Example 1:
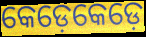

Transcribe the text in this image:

କେଡ଼େକେଡ଼େ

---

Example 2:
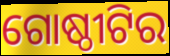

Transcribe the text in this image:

ଗୋଷ୍ଠୀଟିର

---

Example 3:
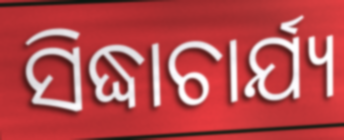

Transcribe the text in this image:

ସିଦ୍ଧାଚାର୍ଯ୍ୟ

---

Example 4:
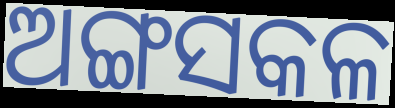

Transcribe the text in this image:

ଅଙ୍ଗସକଳ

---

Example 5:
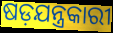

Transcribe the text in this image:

ଷଡ଼ଯନ୍ତ୍ରକାରୀ